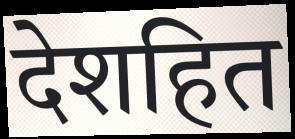
देशहित